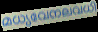
മധ്യവേനലവധി